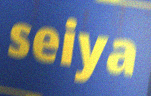
seiya